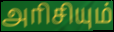
அரிசியும்